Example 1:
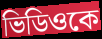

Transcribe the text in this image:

ভিডিওকে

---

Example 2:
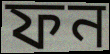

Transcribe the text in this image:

ফন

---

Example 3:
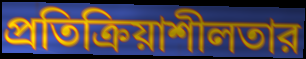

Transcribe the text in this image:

প্রতিক্রিয়াশীলতার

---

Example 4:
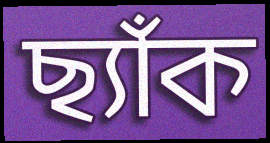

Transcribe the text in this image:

ছ্যাঁক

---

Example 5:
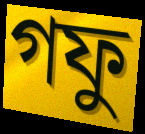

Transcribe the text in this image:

গফু